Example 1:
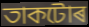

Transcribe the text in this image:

তাকটোৰ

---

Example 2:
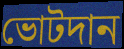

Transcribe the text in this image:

ভোটদান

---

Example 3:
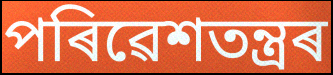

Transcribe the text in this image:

পৰিৱেশতন্ত্ৰৰ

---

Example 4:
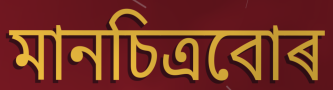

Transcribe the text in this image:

মানচিত্ৰবোৰ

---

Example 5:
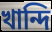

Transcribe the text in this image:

খান্দি